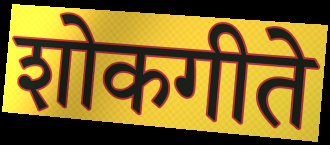
शोकगीते